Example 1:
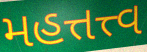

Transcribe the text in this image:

મહત્તત્ત્વ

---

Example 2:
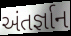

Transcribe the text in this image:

અંતર્જ્ઞાન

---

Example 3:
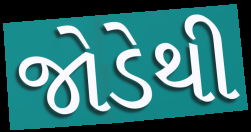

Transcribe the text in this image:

જોડેથી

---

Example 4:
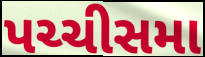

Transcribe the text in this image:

પચ્ચીસમા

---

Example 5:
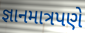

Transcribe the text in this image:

જ્ઞાનમાત્રપણે